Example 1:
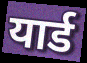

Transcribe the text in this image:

यार्ड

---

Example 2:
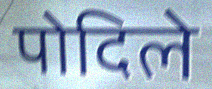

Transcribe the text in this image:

पोदिले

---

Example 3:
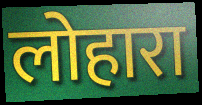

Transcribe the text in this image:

लोहारा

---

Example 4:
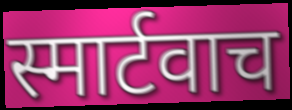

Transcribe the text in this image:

स्मार्टवाच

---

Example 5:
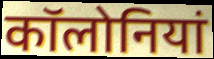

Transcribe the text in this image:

कॉलोनियां